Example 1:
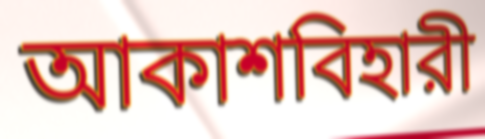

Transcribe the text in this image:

আকাশবিহারী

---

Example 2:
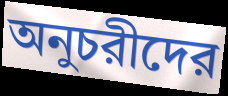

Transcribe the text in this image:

অনুচরীদের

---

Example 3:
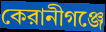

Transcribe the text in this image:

কেরানীগঞ্জে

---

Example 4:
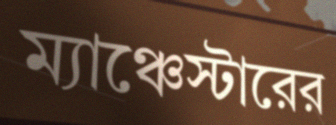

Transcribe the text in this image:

ম্যাঞ্চেস্টারের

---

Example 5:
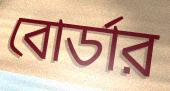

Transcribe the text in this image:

বোর্ডার